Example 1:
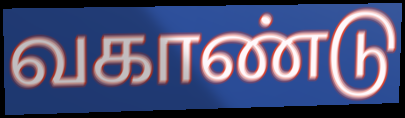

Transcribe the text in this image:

வகாண்டு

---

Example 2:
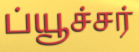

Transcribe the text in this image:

ப்யூச்சர்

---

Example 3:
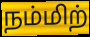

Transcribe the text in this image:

நம்மிற்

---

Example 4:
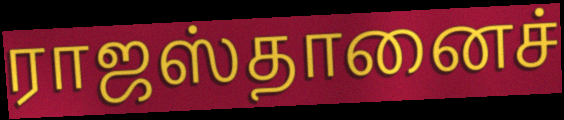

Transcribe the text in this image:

ராஜஸ்தானைச்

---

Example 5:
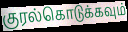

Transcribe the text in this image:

குரல்கொடுக்கவும்